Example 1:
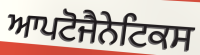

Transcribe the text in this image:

ਆਪਟੋਜੈਨੇਟਿਕਸ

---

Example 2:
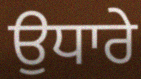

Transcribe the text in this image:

ਉਧਾਰੇ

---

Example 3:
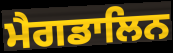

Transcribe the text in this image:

ਮੈਗਡਾਲਿਨ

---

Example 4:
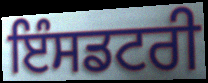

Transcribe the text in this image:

ਇੰਸਡਟਰੀ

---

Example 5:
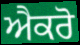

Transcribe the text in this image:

ਐਕਰੋ